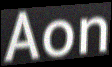
Aon